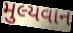
મુલ્યવાન